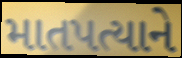
માતપત્યાને